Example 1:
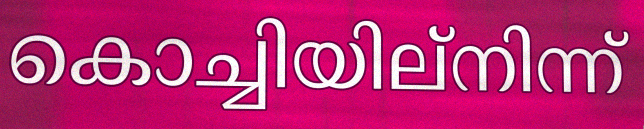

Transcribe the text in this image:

കൊച്ചിയില്നിന്ന്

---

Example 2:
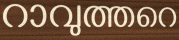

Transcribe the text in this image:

റാവുത്തറെ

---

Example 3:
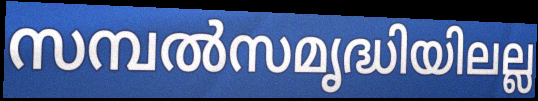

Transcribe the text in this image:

സമ്പൽസമൃദ്ധിയിലല്ല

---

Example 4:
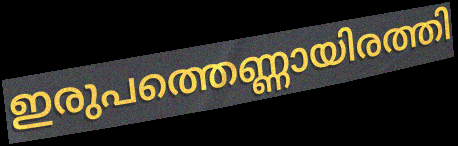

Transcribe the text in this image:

ഇരുപത്തെണ്ണായിരത്തി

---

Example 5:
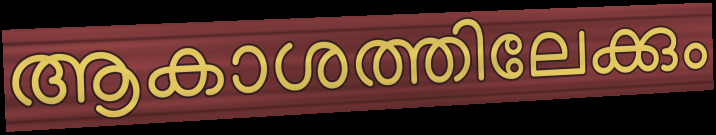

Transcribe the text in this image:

ആകാശത്തിലേക്കും